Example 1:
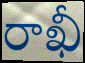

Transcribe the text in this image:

రాఖీ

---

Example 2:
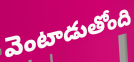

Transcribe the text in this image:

వెంటాడుతోంది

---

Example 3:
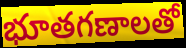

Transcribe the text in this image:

భూతగణాలతో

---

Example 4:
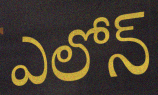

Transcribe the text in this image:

ఎలోన్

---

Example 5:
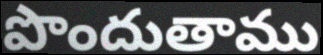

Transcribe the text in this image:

పొందుతాము